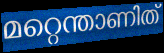
മറ്റെന്താണിത്